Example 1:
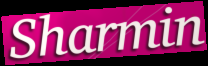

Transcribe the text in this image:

Sharmin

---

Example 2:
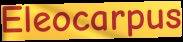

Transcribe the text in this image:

Eleocarpus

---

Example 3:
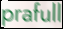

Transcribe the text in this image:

prafull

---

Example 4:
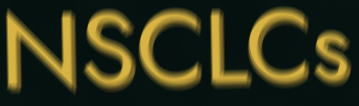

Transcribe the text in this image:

NSCLCs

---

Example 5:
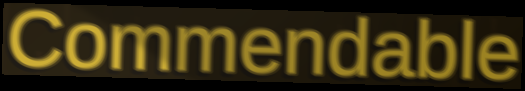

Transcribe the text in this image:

Commendable